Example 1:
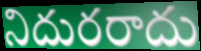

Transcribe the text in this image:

నిదురరాదు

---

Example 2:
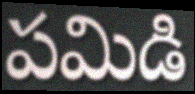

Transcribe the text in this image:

పమిడి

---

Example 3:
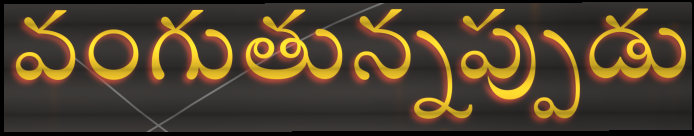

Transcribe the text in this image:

వంగుతున్నప్పుడు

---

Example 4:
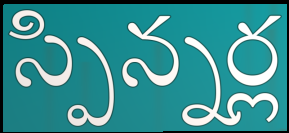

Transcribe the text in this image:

స్పిన్నర్ల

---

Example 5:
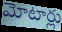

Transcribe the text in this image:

మోటార్లు